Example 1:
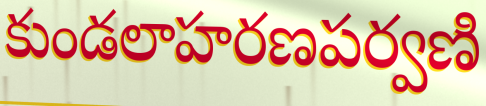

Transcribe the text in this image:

కుండలాహరణపర్వణి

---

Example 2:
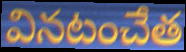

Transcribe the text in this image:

వినటంచేత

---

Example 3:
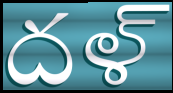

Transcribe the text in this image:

దళ్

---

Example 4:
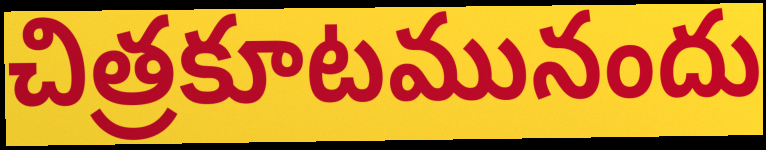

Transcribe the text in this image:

చిత్రకూటమునందు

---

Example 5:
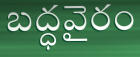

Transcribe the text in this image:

బద్ధవైరం